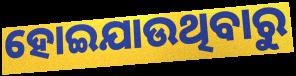
ହୋଇଯାଉଥିବାରୁ